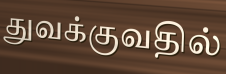
துவக்குவதில்